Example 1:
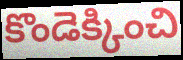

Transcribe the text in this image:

కొండెక్కించి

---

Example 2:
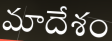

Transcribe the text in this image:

మాదేశం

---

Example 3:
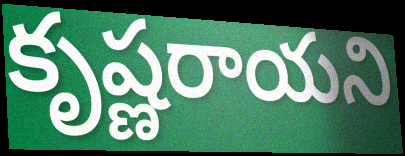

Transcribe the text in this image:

కృష్ణరాయని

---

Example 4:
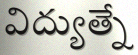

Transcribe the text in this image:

విద్యుత్నే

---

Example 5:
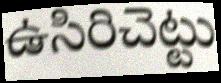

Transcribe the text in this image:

ఉసిరిచెట్టు